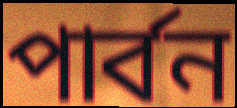
পাৰ্বন